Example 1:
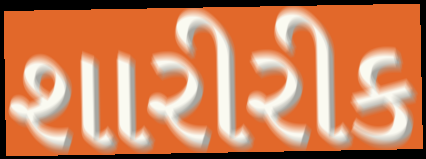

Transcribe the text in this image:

શારીરીક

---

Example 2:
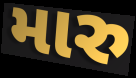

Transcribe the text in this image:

મારુ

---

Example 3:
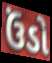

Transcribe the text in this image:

ઉંડો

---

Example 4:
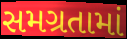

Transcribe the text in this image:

સમગ્રતામાં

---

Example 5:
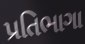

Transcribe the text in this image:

પ્રતિભાગા